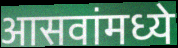
आसवांमध्ये